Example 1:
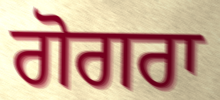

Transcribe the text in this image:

ਗੋਗਰਾ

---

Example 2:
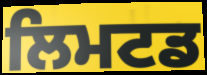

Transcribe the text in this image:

ਲਿਮਟਡ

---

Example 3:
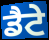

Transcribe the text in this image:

ਡੈਟੇ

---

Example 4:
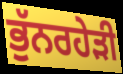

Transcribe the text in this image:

ਭੁੱਨਰਹੇੜੀ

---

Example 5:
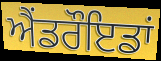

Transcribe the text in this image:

ਐਂਡਰੌਇਡਾਂ